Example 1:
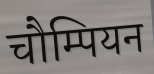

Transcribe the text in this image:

चौम्पियन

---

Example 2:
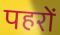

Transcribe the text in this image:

पहरों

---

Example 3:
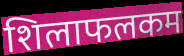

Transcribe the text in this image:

शिलाफलकम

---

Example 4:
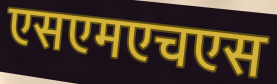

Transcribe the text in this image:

एसएमएचएस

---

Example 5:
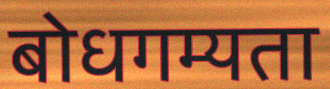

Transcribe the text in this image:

बोधगम्यता